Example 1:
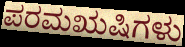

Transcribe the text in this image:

ಪರಮಋಷಿಗಳು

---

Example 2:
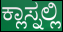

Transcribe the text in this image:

ಕ್ಲಾಸ್ನಲ್ಲಿ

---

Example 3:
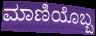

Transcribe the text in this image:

ಮಾಣಿಯೊಬ್ಬ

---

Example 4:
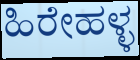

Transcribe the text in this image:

ಹಿರೇಹಳ್ಳ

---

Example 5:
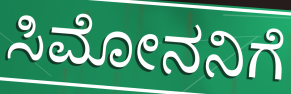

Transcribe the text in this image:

ಸಿಮೋನನಿಗೆ